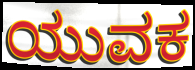
ಯುವಕ